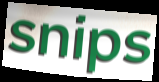
snips